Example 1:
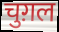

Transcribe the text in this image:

चुग़ल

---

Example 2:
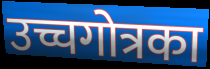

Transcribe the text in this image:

उच्चगोत्रका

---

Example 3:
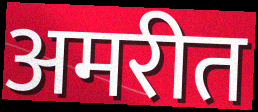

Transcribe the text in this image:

अमरीत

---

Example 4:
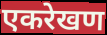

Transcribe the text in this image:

एकरेखण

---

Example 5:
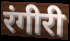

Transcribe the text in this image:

रंगीरी